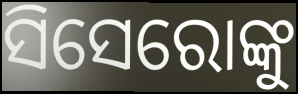
ସିସେରୋଙ୍କୁ